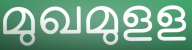
മുഖമുളള